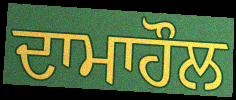
ਦਾਮਾਹੌਲ